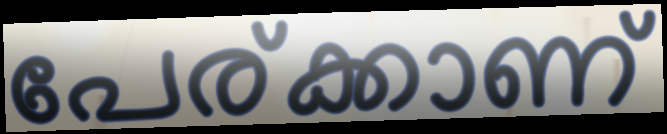
പേര്ക്കാണ്